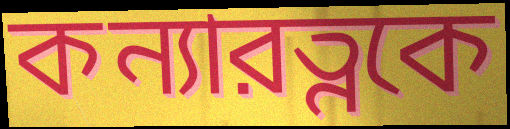
কন্যারত্নকে